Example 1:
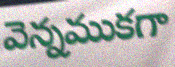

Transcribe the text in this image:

వెన్నముకగా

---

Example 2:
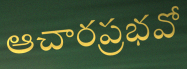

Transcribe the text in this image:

ఆచారప్రభవో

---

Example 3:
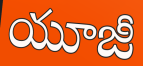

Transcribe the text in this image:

యూజీ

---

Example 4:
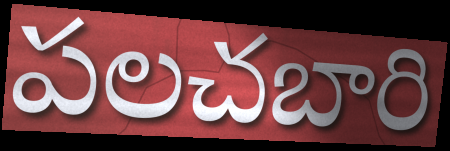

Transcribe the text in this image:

పలచబారి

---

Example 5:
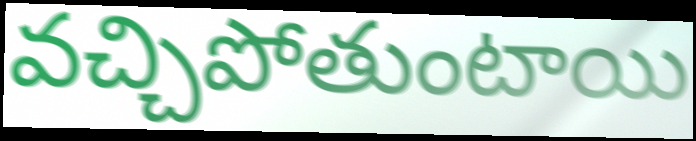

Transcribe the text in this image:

వచ్చిపోతుంటాయి